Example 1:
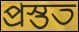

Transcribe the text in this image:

প্ৰস্তত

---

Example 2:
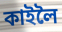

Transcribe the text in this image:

কাইলৈ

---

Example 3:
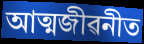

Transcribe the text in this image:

আত্মজীৱনীত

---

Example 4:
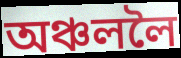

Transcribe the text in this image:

অঞ্চললৈ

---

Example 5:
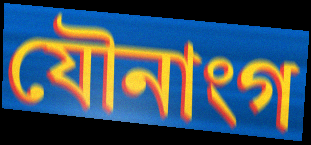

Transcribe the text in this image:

যৌনাংগ